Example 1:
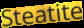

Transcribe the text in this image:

Steatite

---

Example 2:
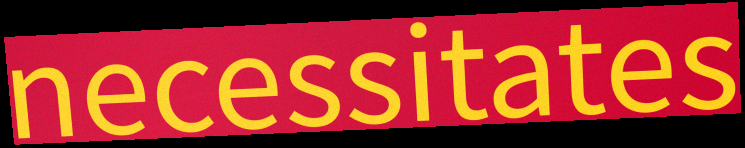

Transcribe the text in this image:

necessitates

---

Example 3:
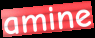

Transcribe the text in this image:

amine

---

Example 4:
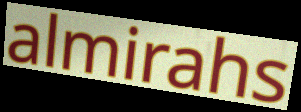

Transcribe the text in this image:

almirahs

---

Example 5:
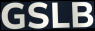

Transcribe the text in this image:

GSLB